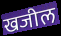
खजील